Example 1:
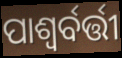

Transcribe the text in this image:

ପାଶ୍ୱର୍ବର୍ତ୍ତୀ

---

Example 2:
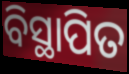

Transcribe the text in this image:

ବିସ୍ଥାପିତ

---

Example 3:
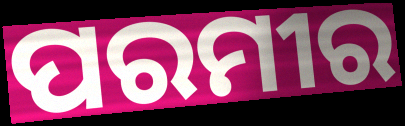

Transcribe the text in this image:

ପରମୀର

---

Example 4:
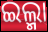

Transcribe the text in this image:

ଇଲ୍ମା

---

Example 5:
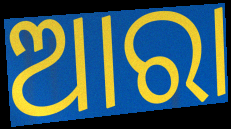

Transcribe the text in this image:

ଆରା